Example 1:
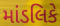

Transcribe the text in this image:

માંડલિકે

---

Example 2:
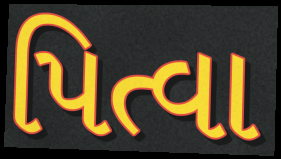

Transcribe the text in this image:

પિત્વા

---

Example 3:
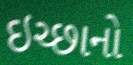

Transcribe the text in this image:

ઇચ્છાનો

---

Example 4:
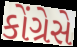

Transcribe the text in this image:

કોંગ્રેસે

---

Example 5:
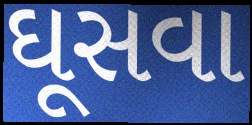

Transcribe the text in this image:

ઘૂસવા